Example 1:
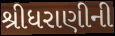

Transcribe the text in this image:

શ્રીધરાણીની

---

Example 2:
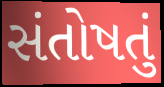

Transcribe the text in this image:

સંતોષતું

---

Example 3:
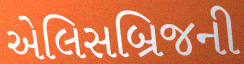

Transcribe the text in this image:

એલિસબ્રિજની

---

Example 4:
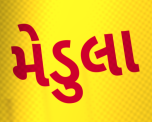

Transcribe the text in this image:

મેડુલા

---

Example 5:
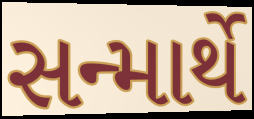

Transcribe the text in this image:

સન્માર્થે